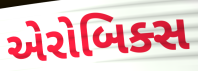
એરોબિક્સ